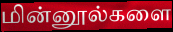
மின்னூல்களை